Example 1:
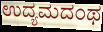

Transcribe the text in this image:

ಉದ್ಯಮದಂಥ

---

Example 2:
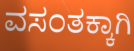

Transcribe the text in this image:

ವಸಂತಕ್ಕಾಗಿ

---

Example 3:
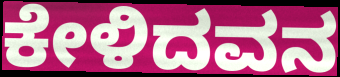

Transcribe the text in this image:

ಕೇಳಿದವನ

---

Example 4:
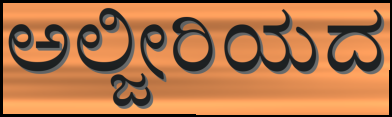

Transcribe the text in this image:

ಅಲ್ಜೀರಿಯದ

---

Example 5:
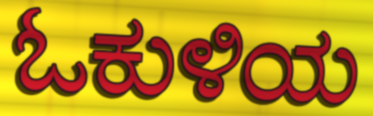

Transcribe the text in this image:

ಓಕುಳಿಯ